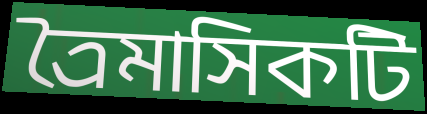
ত্রৈমাসিকটি